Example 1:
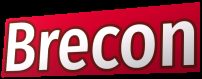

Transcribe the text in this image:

Brecon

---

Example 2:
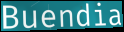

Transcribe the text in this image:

Buendia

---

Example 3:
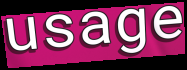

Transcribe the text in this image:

usage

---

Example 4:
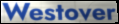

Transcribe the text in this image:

Westover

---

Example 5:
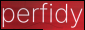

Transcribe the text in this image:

perfidy